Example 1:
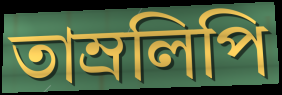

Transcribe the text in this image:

তাম্রলিপি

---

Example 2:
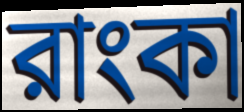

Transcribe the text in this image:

রাংকা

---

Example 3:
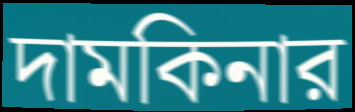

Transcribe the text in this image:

দামকিনার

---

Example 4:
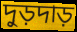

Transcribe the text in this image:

দুড়দাড়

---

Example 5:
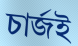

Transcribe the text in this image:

চার্জই